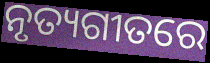
ନୃତ୍ୟଗୀତରେ